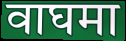
वाघमा